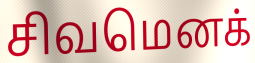
சிவமெனக்